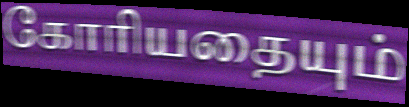
கோரியதையும்